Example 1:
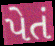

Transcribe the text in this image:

પેતં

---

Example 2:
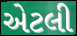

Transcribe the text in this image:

એટલી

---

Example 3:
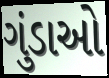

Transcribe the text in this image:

ગુંડાઓ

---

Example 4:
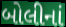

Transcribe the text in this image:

બોલીનાં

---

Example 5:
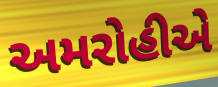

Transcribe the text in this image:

અમરોહીએ